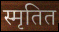
स्मृतित